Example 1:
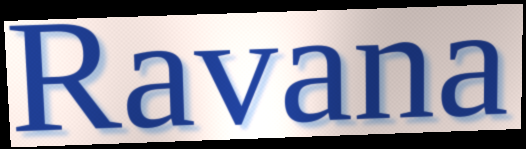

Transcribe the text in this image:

Ravana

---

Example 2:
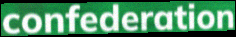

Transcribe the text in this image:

confederation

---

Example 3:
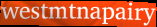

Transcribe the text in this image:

westmtnapairy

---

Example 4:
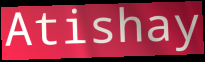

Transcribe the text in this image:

Atishay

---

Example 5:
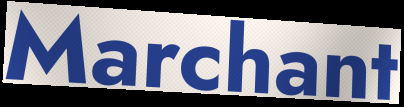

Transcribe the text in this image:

Marchant